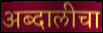
अब्दालीचा